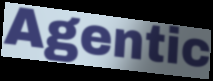
Agentic